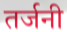
तर्जनी